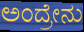
ಅಂದ್ರೇನು